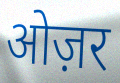
ओज़र